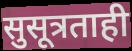
सुसूत्रताही